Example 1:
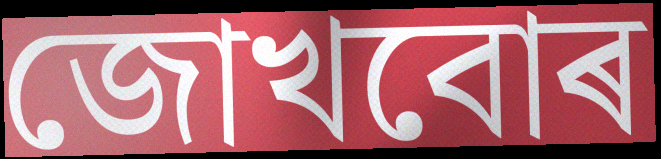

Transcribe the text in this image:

জোখবোৰ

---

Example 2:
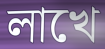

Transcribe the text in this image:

লাখে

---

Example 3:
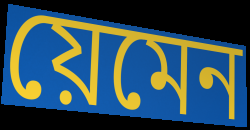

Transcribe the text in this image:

য়েমেন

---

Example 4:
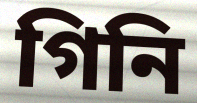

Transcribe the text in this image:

গিনি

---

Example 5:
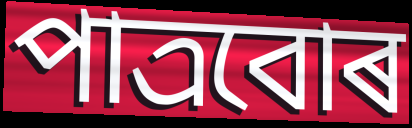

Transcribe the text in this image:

পাত্ৰবোৰ